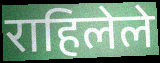
राहिलेले